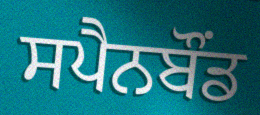
ਸਪੈਨਬੌਂਡ